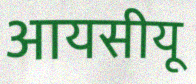
आयसीयू